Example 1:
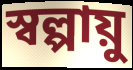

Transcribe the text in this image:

স্বল্পায়ু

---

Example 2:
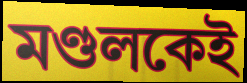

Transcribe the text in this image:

মণ্ডলকেই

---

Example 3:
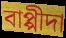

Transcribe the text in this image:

বাপ্পীদা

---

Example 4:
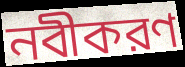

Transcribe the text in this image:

নবীকরণ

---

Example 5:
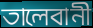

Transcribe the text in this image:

তালেবানী